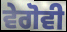
ਵੇਗੋਵੀ